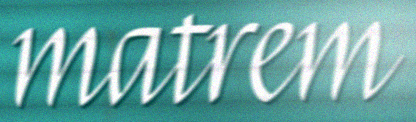
matrem